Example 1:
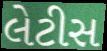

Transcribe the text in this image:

લેટીસ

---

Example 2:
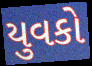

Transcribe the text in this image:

યુવકો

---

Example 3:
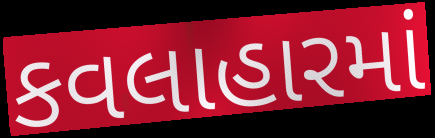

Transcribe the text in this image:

કવલાહારમાં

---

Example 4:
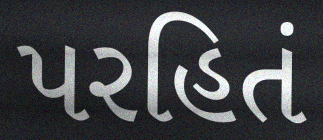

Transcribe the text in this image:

પરહિતં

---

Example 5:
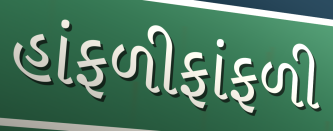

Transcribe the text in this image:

હાંફળીફાંફળી